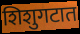
शिशुगटात